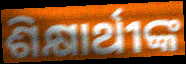
ଶିକ୍ଷାର୍ଥୀଙ୍କ